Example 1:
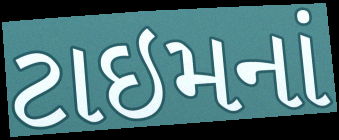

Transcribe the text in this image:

ટાઇમનાં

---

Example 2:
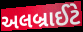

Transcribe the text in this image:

અલબ્રાઈટે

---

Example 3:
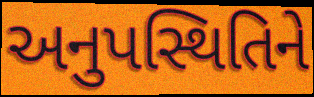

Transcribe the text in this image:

અનુપસ્થિતિને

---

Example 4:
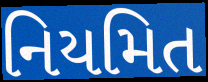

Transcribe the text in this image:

નિયમિત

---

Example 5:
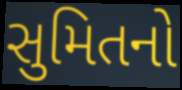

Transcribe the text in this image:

સુમિતનો